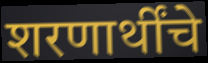
शरणार्थींचे